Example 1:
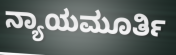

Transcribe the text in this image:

ನ್ಯಾಯಮೂರ್ತಿ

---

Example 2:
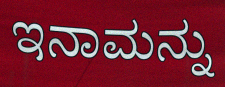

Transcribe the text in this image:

ಇನಾಮನ್ನು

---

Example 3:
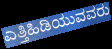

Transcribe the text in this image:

ಎತ್ತಿಹಿಡಿಯುವವರು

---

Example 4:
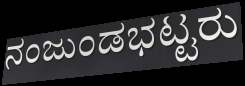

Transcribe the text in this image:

ನಂಜುಂಡಭಟ್ಟರು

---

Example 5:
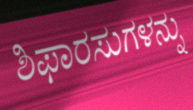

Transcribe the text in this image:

ಶಿಫಾರಸುಗಳನ್ನು